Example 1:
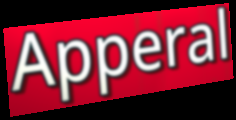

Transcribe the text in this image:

Apperal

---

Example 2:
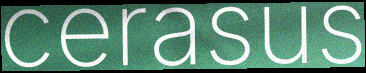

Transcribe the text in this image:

cerasus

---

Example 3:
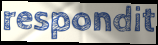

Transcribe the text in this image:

respondit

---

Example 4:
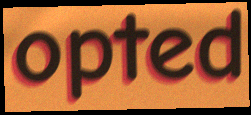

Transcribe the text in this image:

opted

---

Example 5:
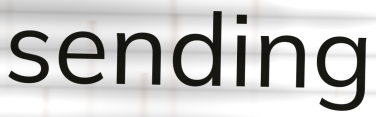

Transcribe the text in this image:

sending